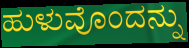
ಹುಳುವೊಂದನ್ನು